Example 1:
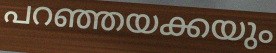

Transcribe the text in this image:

പറഞ്ഞയക്കയും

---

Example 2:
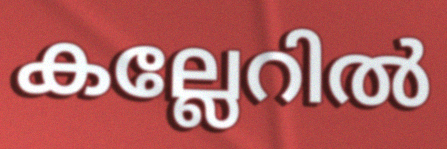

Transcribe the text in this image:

കല്ലേറിൽ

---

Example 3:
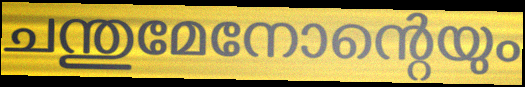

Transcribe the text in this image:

ചന്തുമേനോന്റെയും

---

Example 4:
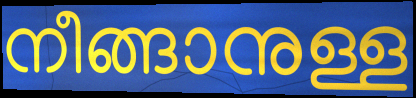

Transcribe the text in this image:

നീങ്ങാനുള്ള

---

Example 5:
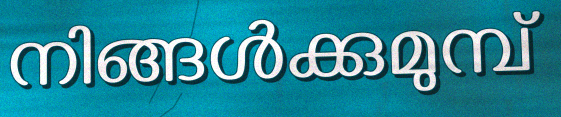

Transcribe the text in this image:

നിങ്ങൾക്കുമുമ്പ്